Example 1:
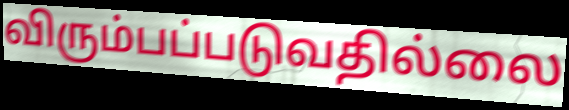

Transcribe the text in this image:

விரும்பப்படுவதில்லை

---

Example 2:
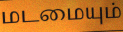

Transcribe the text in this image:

மடமையும்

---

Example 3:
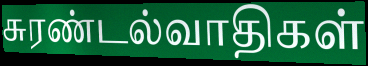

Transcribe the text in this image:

சுரண்டல்வாதிகள்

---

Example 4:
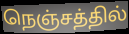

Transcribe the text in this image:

நெஞ்சத்தில்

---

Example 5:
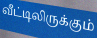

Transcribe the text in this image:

வீட்டிலிருக்கும்